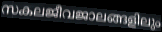
സകലജീവജാലങ്ങളിലും